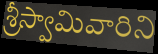
శ్రీస్వామివారిని